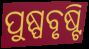
ପୁଷ୍ପବୃଷ୍ଟି